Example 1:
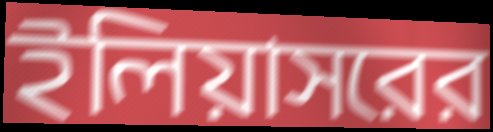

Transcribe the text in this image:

ইলিয়াসরের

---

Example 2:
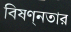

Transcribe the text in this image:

বিষণ্নতার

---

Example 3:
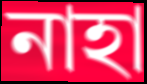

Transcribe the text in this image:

নাহা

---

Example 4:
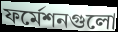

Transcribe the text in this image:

ফর্মেশনগুলো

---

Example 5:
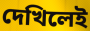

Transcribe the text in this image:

দেখিলেই